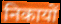
निकायों